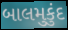
બાલમુકુંદ